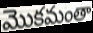
మొకమంతా